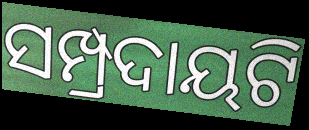
ସମ୍ପ୍ରଦାୟଟି